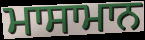
ਮਾਸਾਮਾਨ